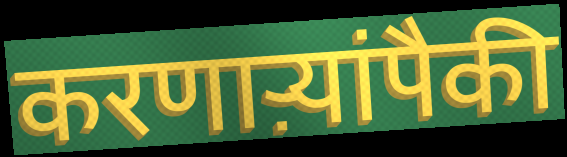
करणाऱ्‍यांपैकी